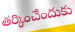
తర్కించేందుకు